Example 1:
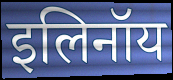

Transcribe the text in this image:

इलिनॉय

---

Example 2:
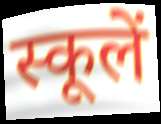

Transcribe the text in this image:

स्कूलें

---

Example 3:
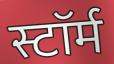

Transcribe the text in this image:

स्टॉर्म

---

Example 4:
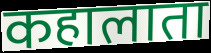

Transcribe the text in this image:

कहालाता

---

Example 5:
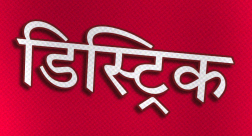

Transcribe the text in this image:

डिस्ट्रिक